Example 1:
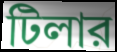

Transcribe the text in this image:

টিলার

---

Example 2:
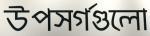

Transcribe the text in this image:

উপসর্গগুলো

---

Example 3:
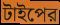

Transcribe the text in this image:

টাইপের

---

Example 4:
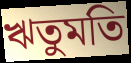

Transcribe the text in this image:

ঋতুমতি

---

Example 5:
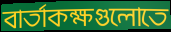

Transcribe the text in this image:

বার্তাকক্ষগুলোতে